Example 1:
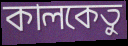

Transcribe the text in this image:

কালকেতু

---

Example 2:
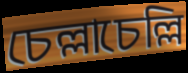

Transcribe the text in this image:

চেল্লাচেল্লি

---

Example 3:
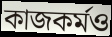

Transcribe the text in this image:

কাজকর্মও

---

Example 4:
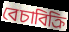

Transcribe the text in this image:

বেচাবিক্রি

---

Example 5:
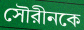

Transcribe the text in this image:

সৌরীনকে